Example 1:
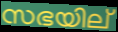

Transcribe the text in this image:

സഭയില്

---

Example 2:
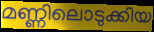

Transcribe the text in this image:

മണ്ണിലൊടുക്കിയ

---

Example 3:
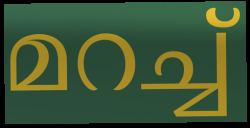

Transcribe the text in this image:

മറച്ച്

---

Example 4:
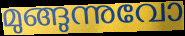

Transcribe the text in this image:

മുങ്ങുന്നുവോ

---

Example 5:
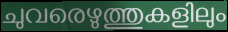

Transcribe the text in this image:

ചുവരെഴുത്തുകളിലും